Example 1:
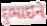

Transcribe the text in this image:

દુભાઇને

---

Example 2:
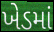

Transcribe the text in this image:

ખેડમાં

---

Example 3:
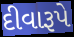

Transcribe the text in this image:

દીવારૂપે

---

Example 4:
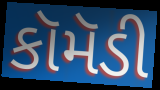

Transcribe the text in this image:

કૉમૅડી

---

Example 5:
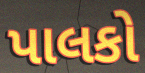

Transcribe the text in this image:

પાલકો